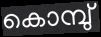
കൊമ്പു്